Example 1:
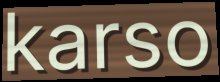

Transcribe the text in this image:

karso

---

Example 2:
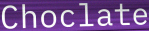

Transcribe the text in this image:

Choclate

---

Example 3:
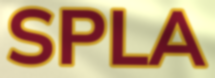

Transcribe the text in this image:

SPLA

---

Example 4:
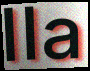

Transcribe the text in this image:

IIa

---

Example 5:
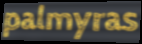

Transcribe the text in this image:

palmyras